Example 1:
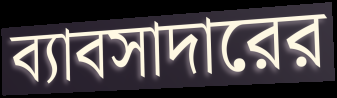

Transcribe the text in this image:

ব্যাবসাদারের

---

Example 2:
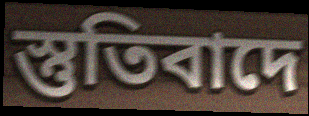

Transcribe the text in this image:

স্তুতিবাদে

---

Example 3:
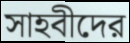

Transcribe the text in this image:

সাহবীদের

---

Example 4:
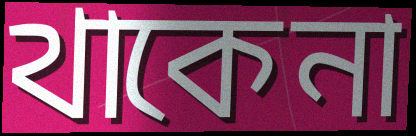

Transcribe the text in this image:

থাকেনা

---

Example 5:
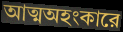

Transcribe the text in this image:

আত্মঅহংকারে